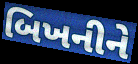
બિખનીને